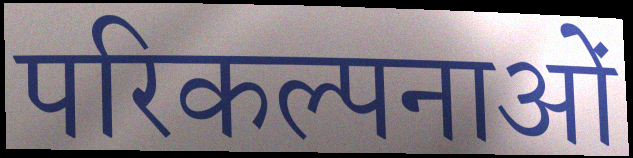
परिकल्पनाओं